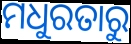
ମଧୁରତାରୁ